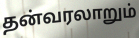
தன்வரலாறும்